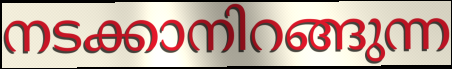
നടക്കാനിറങ്ങുന്ന